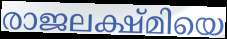
രാജലക്ഷ്മിയെ